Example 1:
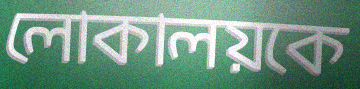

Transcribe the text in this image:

লোকালয়কে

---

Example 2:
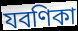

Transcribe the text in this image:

যবণিকা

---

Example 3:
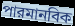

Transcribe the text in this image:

পারমানবিক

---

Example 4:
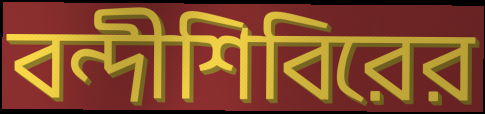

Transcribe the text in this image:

বন্দীশিবিরের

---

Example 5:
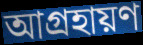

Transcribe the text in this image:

আগ্রহায়ণ